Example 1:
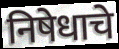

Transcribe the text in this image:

निषेधाचे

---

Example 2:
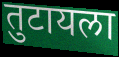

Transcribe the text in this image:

तुटायला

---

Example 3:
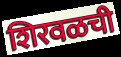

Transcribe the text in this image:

शिरवळची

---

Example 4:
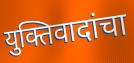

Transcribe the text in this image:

युक्तिवादांचा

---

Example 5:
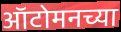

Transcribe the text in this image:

ऑटोमनच्या